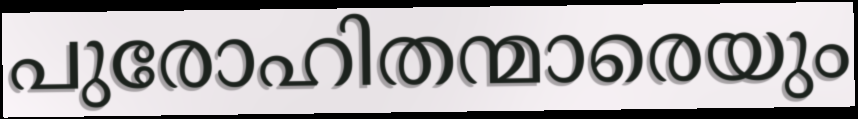
പുരോഹിതന്മാരെയും